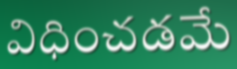
విధించడమే